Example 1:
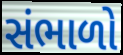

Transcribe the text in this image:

સંભાળો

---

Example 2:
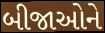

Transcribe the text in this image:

બીજાઓને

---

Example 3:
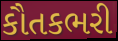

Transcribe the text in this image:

કૌતકભરી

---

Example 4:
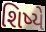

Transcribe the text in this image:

શિષ્યે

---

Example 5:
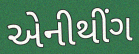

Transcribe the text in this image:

એનીથીંગ